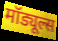
मॉड्यूल्स